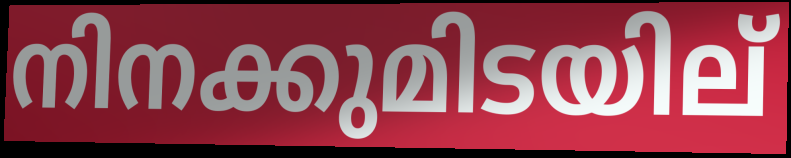
നിനക്കുമിടയില്